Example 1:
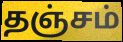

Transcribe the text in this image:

தஞ்சம்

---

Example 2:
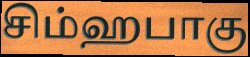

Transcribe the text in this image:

சிம்ஹபாகு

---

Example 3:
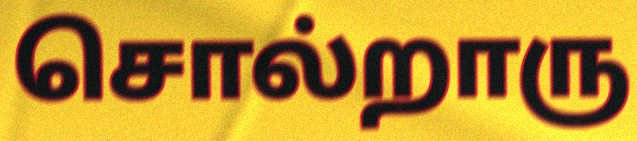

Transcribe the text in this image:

சொல்றாரு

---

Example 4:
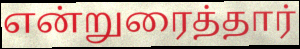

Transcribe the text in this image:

என்றுரைத்தார்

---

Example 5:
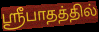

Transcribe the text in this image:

ஸ்ரீபாதத்தில்